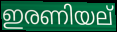
ഇരണിയല്